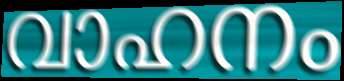
വാഹനം